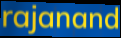
rajanand